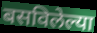
बसविलेल्या